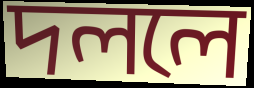
দললে